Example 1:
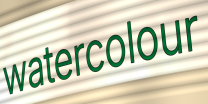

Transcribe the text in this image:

watercolour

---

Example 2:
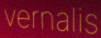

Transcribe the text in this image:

vernalis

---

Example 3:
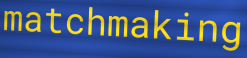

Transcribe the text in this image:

matchmaking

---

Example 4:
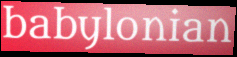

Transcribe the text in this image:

babylonian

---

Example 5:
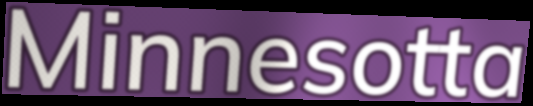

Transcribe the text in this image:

Minnesotta